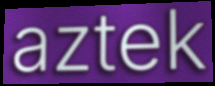
aztek